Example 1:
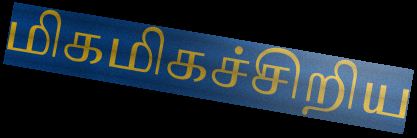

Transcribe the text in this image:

மிகமிகச்சிறிய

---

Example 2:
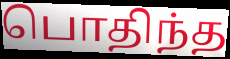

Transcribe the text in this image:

பொதிந்த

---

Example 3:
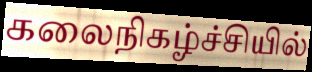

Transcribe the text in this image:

கலைநிகழ்ச்சியில்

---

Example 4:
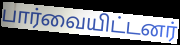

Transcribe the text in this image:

பார்வையிட்டனர்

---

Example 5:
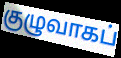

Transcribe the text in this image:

குழுவாகப்